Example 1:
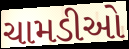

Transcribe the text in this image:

ચામડીઓ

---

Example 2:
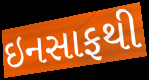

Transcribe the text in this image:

ઇનસાફથી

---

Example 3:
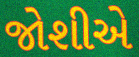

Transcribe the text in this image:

જોશીએ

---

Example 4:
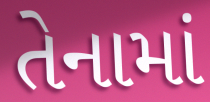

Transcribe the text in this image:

તેનામાં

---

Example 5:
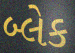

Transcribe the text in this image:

બ્લેક